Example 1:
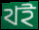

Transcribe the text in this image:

থই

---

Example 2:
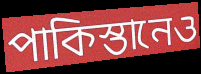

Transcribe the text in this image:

পাকিস্তানেও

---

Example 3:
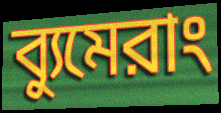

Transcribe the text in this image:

ব্যুমেরাং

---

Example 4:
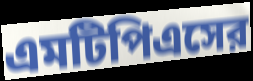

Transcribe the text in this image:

এমটিপিএসের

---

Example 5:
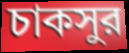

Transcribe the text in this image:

চাকসুর